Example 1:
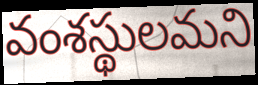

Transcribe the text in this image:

వంశస్థులమని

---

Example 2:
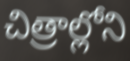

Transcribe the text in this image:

చిత్రాల్లోని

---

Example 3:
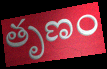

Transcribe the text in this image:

తృణం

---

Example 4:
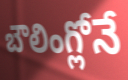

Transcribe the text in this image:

బౌలింగ్లోనే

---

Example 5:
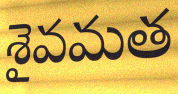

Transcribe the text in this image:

శైవమత